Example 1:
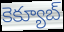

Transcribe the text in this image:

కెక్యూబ్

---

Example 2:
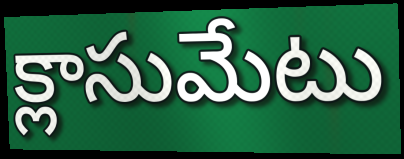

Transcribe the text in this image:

క్లాసుమేటు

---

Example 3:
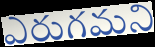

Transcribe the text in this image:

ఎరుగమని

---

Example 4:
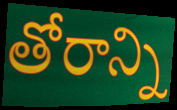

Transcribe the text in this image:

తోరాన్ని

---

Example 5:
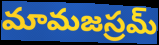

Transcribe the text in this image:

మామజస్రమ్